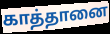
காத்தானை